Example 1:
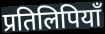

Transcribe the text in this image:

प्रतिलिपियाँ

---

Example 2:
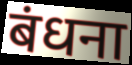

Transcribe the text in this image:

बंधना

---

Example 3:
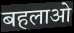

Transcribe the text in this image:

बहलाओ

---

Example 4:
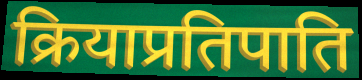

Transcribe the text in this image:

क्रियाप्रतिपाति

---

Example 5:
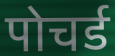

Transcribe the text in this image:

पोचर्ड